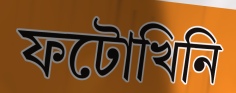
ফটোখিনি